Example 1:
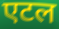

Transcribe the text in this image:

एटल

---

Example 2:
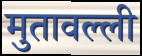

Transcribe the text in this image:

मुतावल्ली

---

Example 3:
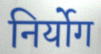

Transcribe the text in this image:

निर्योग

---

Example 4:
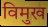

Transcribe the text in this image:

विमुख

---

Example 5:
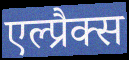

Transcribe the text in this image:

एल्प्रैक्स